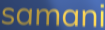
samani